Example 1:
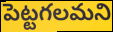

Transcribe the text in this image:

పెట్టగలమని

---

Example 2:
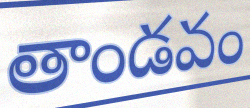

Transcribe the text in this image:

తాండవం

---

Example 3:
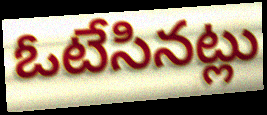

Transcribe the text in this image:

ఓటేసినట్లు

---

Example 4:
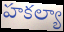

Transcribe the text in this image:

హకల్యా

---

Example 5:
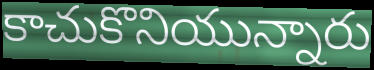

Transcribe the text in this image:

కాచుకొనియున్నారు